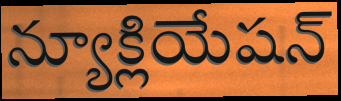
న్యూక్లియేషన్